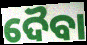
ଦୈବା